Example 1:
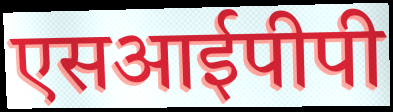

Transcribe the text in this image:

एसआईपीपी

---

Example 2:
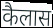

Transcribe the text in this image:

कैलास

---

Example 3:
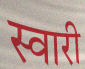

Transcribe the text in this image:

स्वारी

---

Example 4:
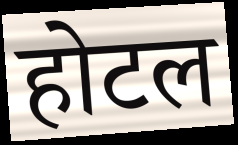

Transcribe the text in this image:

होटल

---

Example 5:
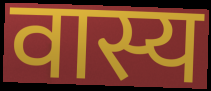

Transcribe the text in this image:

वास्य